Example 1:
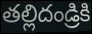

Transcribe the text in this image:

తల్లిదండ్రికి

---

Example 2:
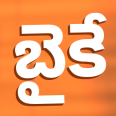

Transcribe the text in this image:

బైకే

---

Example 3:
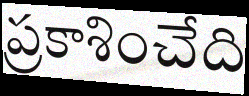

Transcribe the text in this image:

ప్రకాశించేది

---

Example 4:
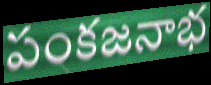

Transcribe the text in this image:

పంకజనాభ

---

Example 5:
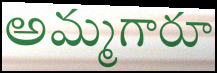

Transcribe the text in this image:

అమ్మగారూ